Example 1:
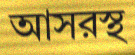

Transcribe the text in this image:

আসরস্থ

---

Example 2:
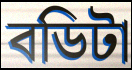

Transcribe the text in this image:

বডিটা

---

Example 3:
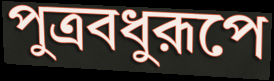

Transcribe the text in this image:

পুত্রবধুরূপে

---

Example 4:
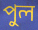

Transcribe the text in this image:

পুল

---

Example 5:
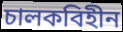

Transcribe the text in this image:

চালকবিহীন